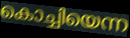
കൊച്ചിയെന്ന